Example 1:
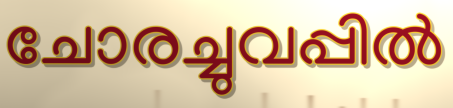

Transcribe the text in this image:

ചോരച്ചുവപ്പിൽ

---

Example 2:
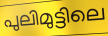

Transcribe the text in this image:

പുലിമുട്ടിലെ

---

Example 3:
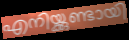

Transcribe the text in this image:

എനിയ്ക്കുണ്ടായി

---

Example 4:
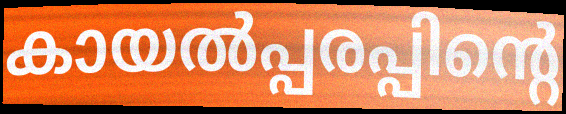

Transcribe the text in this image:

കായൽപ്പരപ്പിന്റെ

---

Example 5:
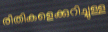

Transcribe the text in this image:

രീതികളെക്കുറിച്ചുള്ള